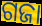
ଗଜା